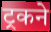
ट्रकने